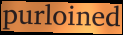
purloined